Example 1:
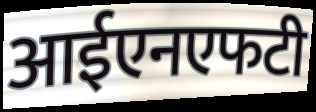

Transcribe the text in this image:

आईएनएफटी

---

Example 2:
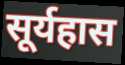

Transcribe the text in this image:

सूर्यहास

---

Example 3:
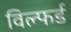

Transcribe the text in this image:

विल्फर्ड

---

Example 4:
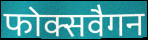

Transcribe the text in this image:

फोक्सवैगन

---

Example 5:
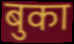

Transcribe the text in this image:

बुका